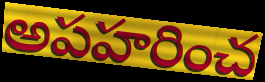
అపహరించ